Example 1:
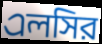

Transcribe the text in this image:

এলসির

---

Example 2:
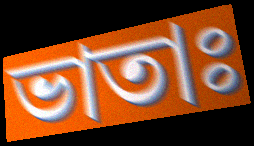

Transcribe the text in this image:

ভাতাঃ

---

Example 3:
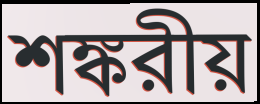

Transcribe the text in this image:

শঙ্করীয়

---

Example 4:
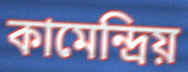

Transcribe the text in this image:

কামেন্দ্রিয়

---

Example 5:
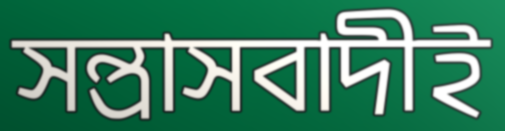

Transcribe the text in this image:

সন্ত্রাসবাদীই